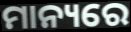
ମାନ୍ୟରେ